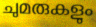
ചുമരുകളും